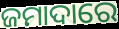
ଜମାଦାରେ